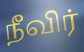
நீவிர்